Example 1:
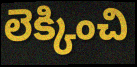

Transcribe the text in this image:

లెక్కించి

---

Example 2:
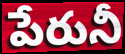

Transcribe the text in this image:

పేరునీ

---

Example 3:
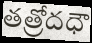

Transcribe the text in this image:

తత్రోదధౌ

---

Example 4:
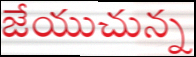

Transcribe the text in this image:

జేయుచున్న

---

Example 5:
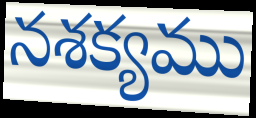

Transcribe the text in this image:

నశక్యము